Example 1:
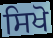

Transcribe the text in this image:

ਸਿਖੋ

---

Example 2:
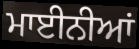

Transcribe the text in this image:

ਮਾਈਨੀਆਂ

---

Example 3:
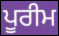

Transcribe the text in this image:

ਪੂਰੀਮ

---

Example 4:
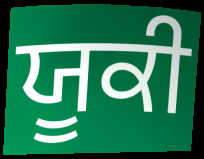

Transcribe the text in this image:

ਯੂਕੀ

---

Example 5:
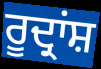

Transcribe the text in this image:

ਰੂਦ੍ਰਾਂਸ਼